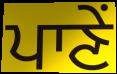
ਪਾਣੇਂ